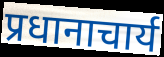
प्रधानाचार्य